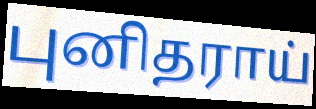
புனிதராய்